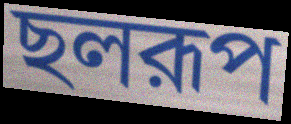
ছলরূপ